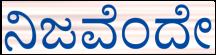
ನಿಜವೆಂದೇ